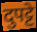
दुपट्टे